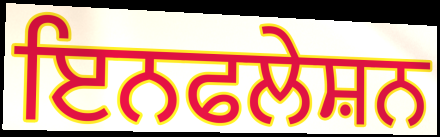
ਇਨਫਲੇਸ਼ਨ